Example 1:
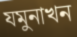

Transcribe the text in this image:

যমুনাখন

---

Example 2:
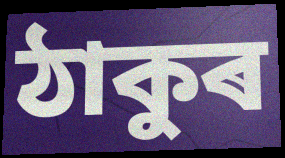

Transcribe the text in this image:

ঠাকুৰ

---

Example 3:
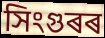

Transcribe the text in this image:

সিংগুৰৰ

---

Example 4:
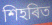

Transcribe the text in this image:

শিহৰিত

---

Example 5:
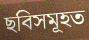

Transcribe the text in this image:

ছবিসমূহত